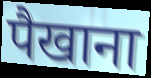
पैखाना